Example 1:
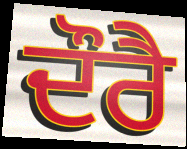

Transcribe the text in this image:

ਦੌਰੈ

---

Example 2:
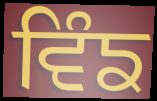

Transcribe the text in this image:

ਵਿੰਙ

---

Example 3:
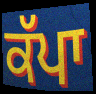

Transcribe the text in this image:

ਕੱਪਾ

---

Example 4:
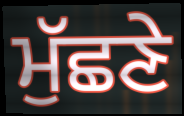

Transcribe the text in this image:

ਮੁੱਛਣੇ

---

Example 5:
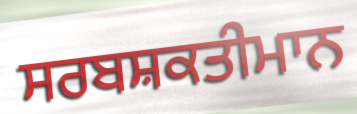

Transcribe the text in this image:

ਸਰਬਸ਼ਕਤੀਮਾਨ